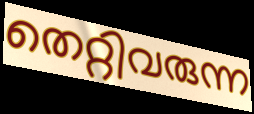
തെറ്റിവരുന്ന